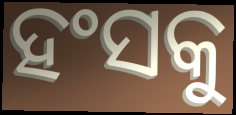
ହଂସକୁ